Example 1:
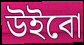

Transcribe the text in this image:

উইবো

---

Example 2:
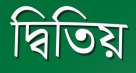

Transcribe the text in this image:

দ্বিতিয়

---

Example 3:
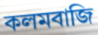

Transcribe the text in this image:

কলমবাজি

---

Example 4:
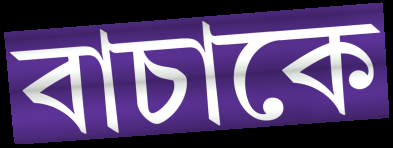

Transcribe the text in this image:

বাচাকে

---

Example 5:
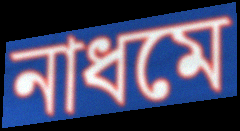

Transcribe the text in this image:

নাধমে